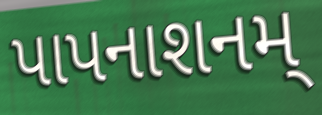
પાપનાશનમ્